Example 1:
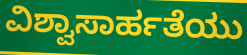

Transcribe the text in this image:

ವಿಶ್ವಾಸಾರ್ಹತೆಯು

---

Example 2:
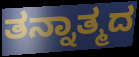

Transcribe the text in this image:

ತನ್ನಾತ್ಮದ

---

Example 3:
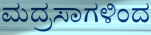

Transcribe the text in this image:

ಮದ್ರಸಾಗಳಿಂದ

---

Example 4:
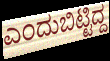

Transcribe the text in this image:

ಎಂದುಬಿಟ್ಟಿದ್ದ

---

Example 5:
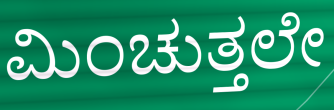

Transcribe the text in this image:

ಮಿಂಚುತ್ತಲೇ